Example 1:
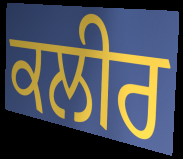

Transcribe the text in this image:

ਕਲੀਰ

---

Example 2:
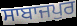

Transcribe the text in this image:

ਸਾਬਾਜਪੁਰ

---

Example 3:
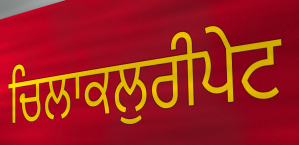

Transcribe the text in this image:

ਚਿਲਾਕਲੁਰੀਪੇਟ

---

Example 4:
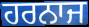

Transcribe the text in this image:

ਹਰਨਾਜ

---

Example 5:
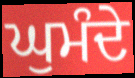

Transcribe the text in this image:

ਘੁਮੰਦੇ